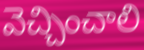
వెచ్చించాలి